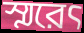
স্মরেৎ